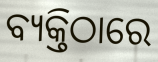
ବ୍ୟକ୍ତିଠାରେ